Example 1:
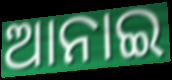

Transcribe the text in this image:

ଆନାଇ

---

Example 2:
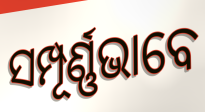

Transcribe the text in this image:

ସମ୍ପୂର୍ଣ୍ଣଭାବେ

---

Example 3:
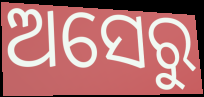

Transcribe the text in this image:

ଅସେରୁ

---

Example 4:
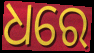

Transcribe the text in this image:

ଧରେ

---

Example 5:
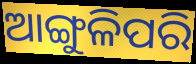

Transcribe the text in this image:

ଆଙ୍ଗୁଳିପରି